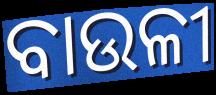
ବାଉଳୀ